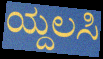
ಯ್ದಲಸಿ